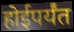
होईपर्यंत